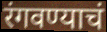
रंगवण्याचं